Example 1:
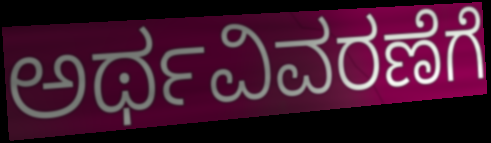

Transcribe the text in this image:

ಅರ್ಥವಿವರಣೆಗೆ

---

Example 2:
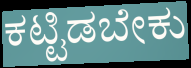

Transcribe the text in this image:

ಕಟ್ಟಿಡಬೇಕು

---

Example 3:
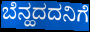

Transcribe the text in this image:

ಬೆನ್ಹದದನಿಗೆ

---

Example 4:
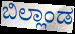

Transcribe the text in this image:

ಬಿಲ್ಲಾಂಡ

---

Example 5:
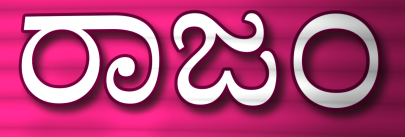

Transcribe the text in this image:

ರಾಜಂ